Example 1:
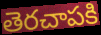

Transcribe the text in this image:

తెరచాపకి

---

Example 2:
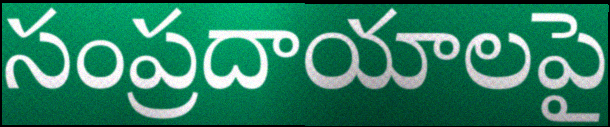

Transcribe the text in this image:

సంప్రదాయాలపై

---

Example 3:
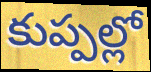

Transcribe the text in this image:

కుప్పల్లో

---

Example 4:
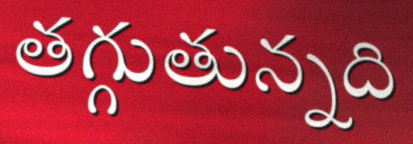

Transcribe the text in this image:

తగ్గుతున్నది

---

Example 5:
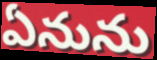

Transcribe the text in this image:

ఏనును